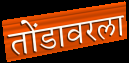
तोंडावरला